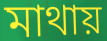
মাথায়